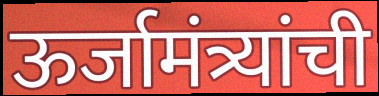
ऊर्जामंत्र्यांची